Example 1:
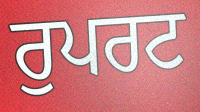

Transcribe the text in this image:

ਰੁਪਰਟ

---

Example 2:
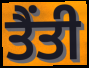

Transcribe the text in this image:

ਤੈਂਤੀ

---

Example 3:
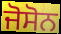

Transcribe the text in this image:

ਜੋਸੋਨ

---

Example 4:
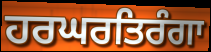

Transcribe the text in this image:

ਹਰਘਰਤਿਰੰਗਾ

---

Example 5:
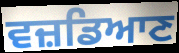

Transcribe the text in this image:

ਵਜ਼ਡਿਆਣ